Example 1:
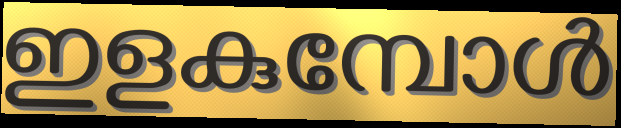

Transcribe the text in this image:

ഇളകുമ്പോൾ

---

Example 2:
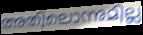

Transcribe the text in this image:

അതിലൊന്നുമില്ല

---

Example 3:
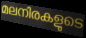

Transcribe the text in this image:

മലനിരകളുടെ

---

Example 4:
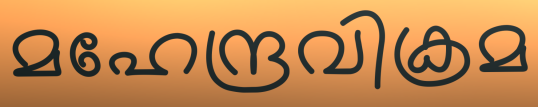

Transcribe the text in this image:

മഹേന്ദ്രവിക്രമ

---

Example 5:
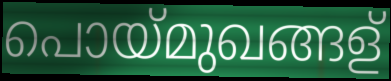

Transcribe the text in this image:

പൊയ്മുഖങ്ങള്